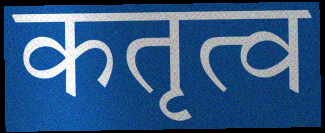
कतृत्व